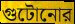
গুটোনোর